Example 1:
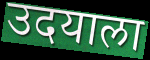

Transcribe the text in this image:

उदयाला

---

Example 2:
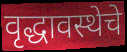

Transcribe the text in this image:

वृद्धावस्थेचे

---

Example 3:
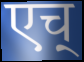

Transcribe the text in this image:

एच्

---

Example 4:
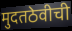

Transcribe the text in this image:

मुदतठेवीची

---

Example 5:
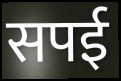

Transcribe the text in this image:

सपई